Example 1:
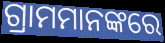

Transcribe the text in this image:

ଗ୍ରାମମାନଙ୍କରେ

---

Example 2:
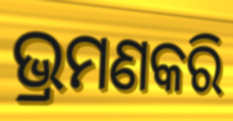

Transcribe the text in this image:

ଭ୍ରମଣକରି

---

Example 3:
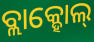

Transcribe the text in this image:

ବ୍ଲାକ୍ହୋଲ୍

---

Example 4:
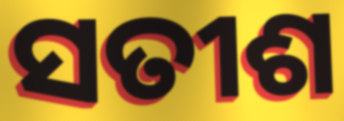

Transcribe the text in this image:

ସତୀଶ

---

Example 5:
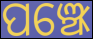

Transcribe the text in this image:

ପଞ୍ଝେ